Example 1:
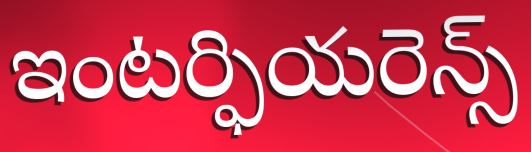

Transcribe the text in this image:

ఇంటర్ఫియరెన్స్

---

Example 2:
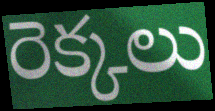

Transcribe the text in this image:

రెక్కలు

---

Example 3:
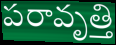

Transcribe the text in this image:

పరావృత్తి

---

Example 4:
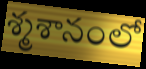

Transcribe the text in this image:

శ్మశానంలో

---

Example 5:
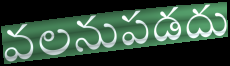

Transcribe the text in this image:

వలనుపడదు